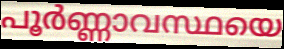
പൂർണ്ണാവസ്ഥയെ